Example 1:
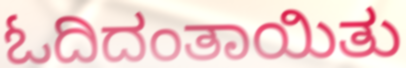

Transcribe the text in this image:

ಓದಿದಂತಾಯಿತು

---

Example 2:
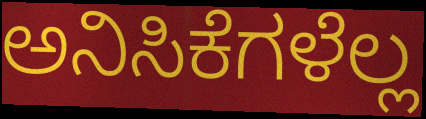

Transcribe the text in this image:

ಅನಿಸಿಕೆಗಳೆಲ್ಲ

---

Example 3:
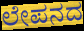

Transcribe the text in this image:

ಲೇಪನದ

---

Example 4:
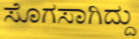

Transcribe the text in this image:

ಸೊಗಸಾಗಿದ್ದು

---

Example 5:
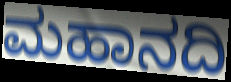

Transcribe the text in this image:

ಮಹಾನದಿ